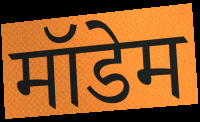
मॉडेम